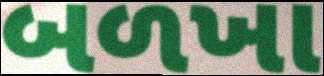
બળખા